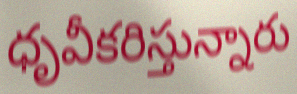
ధృవీకరిస్తున్నారు